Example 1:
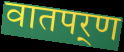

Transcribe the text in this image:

वातपर्ण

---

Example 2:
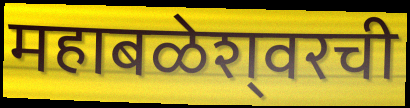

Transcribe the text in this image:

महाबळेश्वरची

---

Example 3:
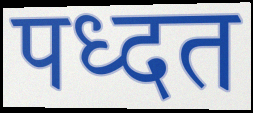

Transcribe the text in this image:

पध्दत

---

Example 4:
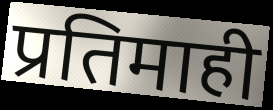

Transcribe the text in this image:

प्रतिमाही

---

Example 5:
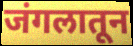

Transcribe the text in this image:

जंगलातून